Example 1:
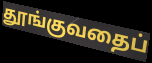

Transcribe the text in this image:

தூங்குவதைப்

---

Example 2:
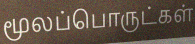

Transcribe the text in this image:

மூலப்பொருட்கள்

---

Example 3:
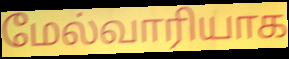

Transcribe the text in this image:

மேல்வாரியாக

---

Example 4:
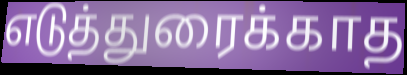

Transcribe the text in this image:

எடுத்துரைக்காத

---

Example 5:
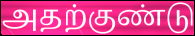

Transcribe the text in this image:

அதற்குண்டு